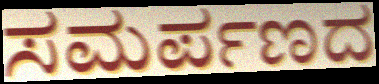
ಸಮರ್ಪಣದ